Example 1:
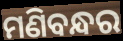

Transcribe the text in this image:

ମଣିବନ୍ଧର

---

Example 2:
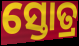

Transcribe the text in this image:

ସ୍ତୋତ୍ର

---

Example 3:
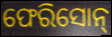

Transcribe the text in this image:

ଫେରିସୋନ୍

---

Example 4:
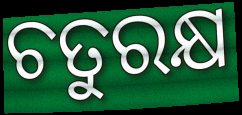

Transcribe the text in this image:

ଚତୁରକ୍ଷ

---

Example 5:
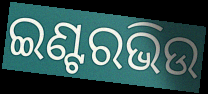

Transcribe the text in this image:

ଇଣ୍ଟରଭିଉ